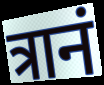
त्रानं